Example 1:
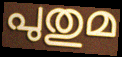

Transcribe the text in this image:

പുതുമ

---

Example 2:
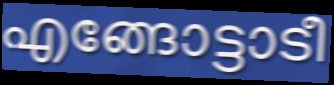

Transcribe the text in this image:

എങ്ങോട്ടാടീ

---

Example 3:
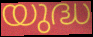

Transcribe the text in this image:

യുദ്ധ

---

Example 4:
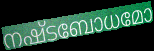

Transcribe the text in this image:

നഷ്ടബോധമോ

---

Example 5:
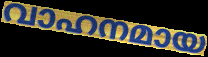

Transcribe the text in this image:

വാഹനമായ